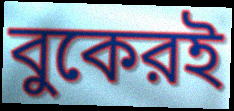
বুকেরই